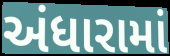
અંધારામાં